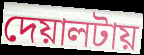
দেয়ালটায়